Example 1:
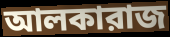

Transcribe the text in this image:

আলকারাজ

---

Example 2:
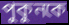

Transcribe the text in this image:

পুকুনকে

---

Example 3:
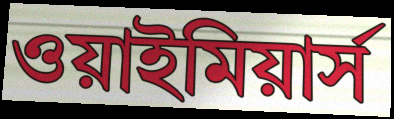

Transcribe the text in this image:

ওয়াইমিয়ার্স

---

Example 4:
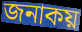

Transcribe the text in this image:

জনাকয়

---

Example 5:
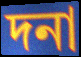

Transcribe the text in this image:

দনা